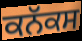
ਕਨੱਕਸ